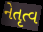
નેતૃત્વ